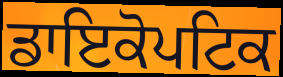
ਡਾਇਕੋਪਟਿਕ